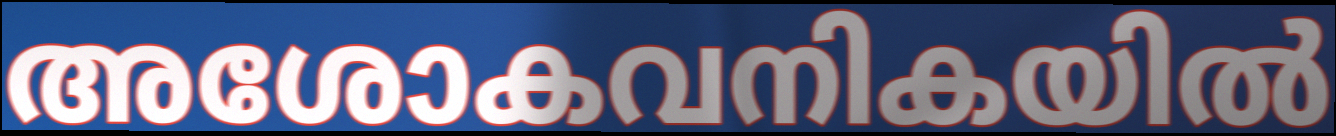
അശോകവനികയിൽ